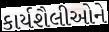
કાર્યશૈલીઓને